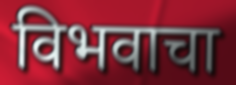
विभवाचा